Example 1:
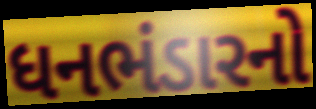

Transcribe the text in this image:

ધનભંડારનો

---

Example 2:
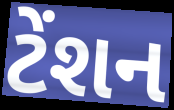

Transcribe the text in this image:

ટેંશન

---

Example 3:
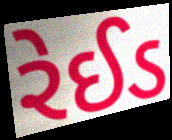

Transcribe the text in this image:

રેઈડ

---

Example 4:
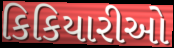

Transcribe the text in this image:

કિકિયારીઓ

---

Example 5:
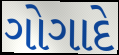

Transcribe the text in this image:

ગોગાદે